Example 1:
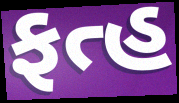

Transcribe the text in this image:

ફત્હ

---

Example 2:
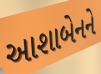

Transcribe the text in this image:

આશાબેનને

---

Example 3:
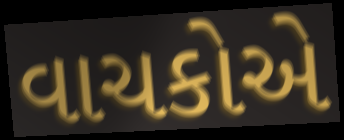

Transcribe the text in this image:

વાચકોએ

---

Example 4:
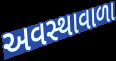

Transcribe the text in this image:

અવસ્થાવાળા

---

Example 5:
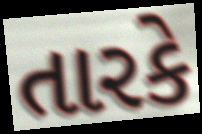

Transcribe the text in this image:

તારકે